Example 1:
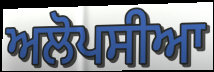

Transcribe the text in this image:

ਅਲੋਪਸੀਆ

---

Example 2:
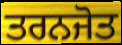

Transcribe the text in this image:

ਤਰਨਜੋਤ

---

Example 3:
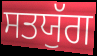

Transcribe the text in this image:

ਸਤਯੁੱਗ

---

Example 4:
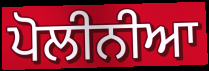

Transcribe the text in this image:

ਪੋਲੀਨੀਆ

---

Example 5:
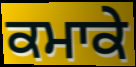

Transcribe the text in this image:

ਕਮਾਕੇ